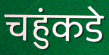
चहुंकडे